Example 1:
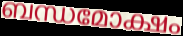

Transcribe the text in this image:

ബന്ധമോക്ഷം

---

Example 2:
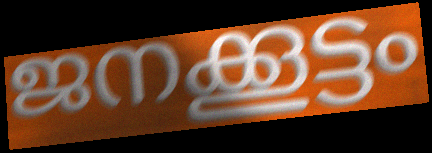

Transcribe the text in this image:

ജനക്കൂട്ടം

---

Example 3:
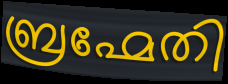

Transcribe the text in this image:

ബ്രഹ്മേതി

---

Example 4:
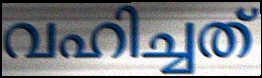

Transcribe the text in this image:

വഹിച്ചത്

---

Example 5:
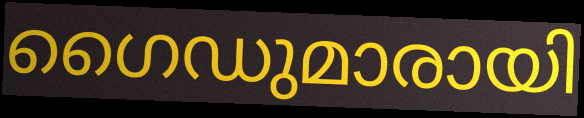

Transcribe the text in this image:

ഗൈഡുമാരായി